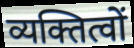
व्यक्तित्वों